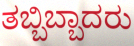
ತಬ್ಬಿಬ್ಬಾದರು